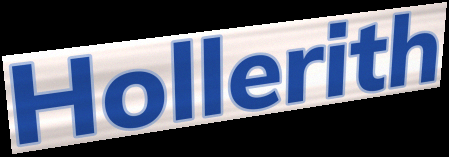
Hollerith